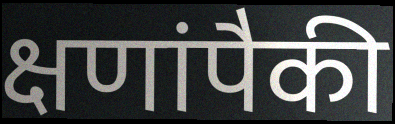
क्षणांपैकी